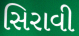
સિરાવી